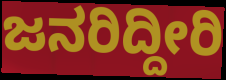
ಜನರಿದ್ದೀರಿ